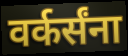
वर्कर्संना